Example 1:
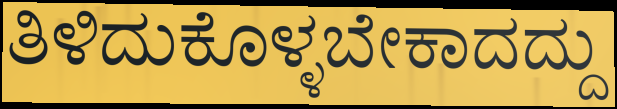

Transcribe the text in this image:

ತಿಳಿದುಕೊಳ್ಳಬೇಕಾದದ್ದು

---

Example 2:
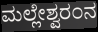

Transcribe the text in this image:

ಮಲ್ಲೇಶ್ವರಂನ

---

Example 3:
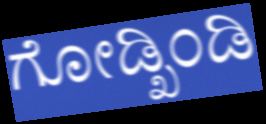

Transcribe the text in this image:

ಗೋಡ್ಖಿಂಡಿ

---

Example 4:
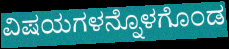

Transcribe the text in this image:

ವಿಷಯಗಳನ್ನೊಳಗೊಂಡ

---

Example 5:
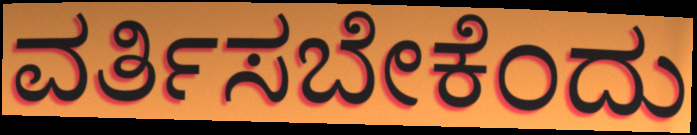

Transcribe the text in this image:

ವರ್ತಿಸಬೇಕೆಂದು